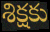
శిక్షకు